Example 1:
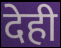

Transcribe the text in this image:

देही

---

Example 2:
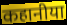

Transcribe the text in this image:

कहानीया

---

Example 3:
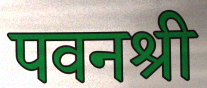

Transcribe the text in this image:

पवनश्री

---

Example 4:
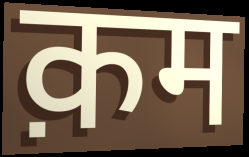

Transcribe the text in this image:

क़म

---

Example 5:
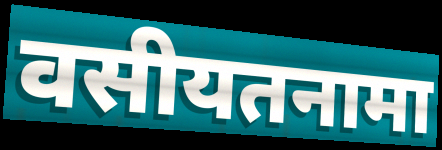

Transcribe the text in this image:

वसीयतनामा